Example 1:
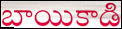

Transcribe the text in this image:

బాయికాడి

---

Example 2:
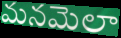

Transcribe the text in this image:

మనమెలా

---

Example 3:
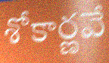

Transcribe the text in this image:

శోకార్ణవే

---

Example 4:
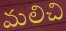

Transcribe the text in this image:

మలిచి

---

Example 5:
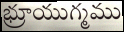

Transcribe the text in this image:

భ్రూయుగ్మము